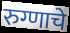
रुग्णाचे